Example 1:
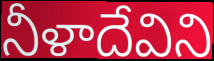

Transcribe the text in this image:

నీళాదేవిని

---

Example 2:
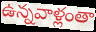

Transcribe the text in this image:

ఉన్నవాళ్లంతా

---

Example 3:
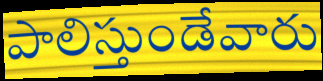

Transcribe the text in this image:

పాలిస్తుండేవారు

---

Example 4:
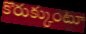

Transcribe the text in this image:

కొరుక్కుంటూ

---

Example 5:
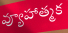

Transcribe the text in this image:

వ్యూహాత్మక